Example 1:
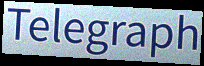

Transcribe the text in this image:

Telegraph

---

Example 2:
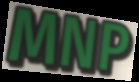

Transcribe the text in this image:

MNP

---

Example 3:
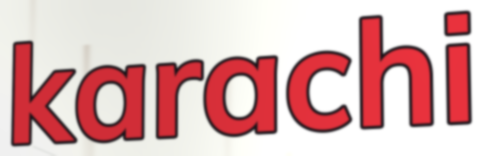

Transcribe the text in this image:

karachi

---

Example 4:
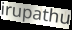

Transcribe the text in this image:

irupathu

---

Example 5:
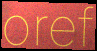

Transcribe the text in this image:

oref